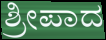
ಶ್ರೀಪಾದ